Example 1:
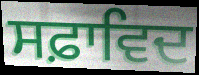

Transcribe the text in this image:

ਸਫ਼ਾਵਿਦ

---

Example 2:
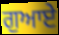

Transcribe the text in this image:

ਗੁਆਏ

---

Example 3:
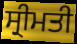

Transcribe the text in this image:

ਸ੍ਰੀਮਤੀ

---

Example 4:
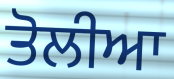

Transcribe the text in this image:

ਤੋਲੀਆ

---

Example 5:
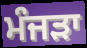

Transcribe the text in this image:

ਮੰਜੜਾ